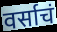
वर्साचं